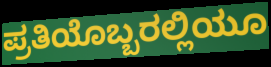
ಪ್ರತಿಯೊಬ್ಬರಲ್ಲಿಯೂ